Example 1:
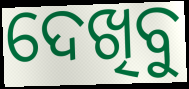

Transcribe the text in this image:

ଦେଖିବୁ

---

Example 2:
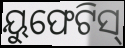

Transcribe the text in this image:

ୟୁଫେଟିସ୍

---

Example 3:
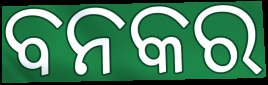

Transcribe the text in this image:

ବନକର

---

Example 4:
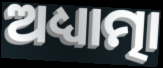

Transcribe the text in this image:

ଅଧ୍ୟାତ୍ମା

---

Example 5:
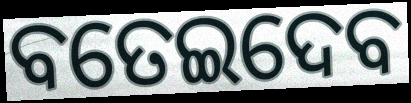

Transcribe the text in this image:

ବତେଇଦେବ